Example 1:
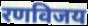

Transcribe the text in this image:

रणविजय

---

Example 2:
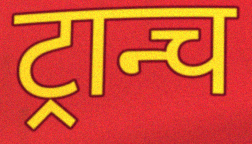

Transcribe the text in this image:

ट्रान्च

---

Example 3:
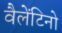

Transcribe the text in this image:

वैलेंटिनो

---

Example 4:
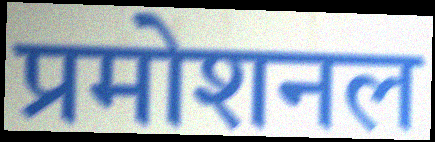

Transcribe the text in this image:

प्रमोशनल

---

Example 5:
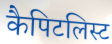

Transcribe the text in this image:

कैपिटलिस्ट